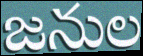
జనుల